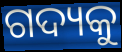
ଗଦ୍ୟକୁ